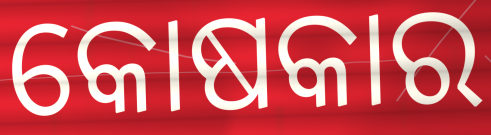
କୋଷକାର